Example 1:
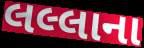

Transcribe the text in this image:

લલ્લાના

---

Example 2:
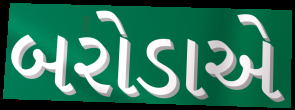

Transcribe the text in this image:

બરોડાએ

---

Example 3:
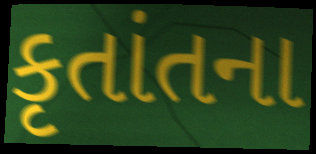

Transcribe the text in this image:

કૃતાંતના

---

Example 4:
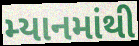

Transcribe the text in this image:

મ્યાનમાંથી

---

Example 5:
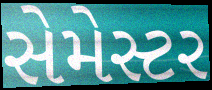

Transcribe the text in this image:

સેમેસ્ટર